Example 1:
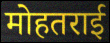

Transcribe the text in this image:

मोहतराई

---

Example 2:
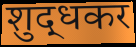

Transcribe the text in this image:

शुद्धकर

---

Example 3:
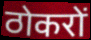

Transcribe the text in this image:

ठोकरों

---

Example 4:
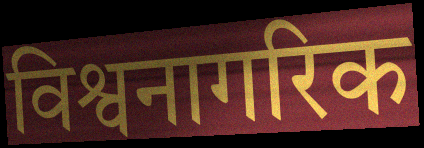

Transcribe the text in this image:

विश्वनागरिक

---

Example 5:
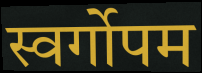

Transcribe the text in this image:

स्वर्गोपम